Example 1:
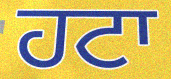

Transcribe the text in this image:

ਹਟਾ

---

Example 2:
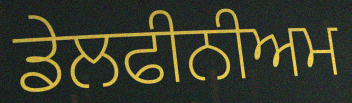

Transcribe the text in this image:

ਡੇਲਫੀਨੀਅਮ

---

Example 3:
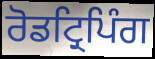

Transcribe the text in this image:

ਰੋਡਟ੍ਰਿਪਿੰਗ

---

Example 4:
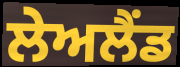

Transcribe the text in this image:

ਲੇਅਲੈਂਡ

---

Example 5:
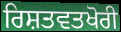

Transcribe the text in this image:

ਰਿਸ਼ਤਵਤਖੋਰੀ